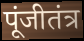
पूंजीतंत्र